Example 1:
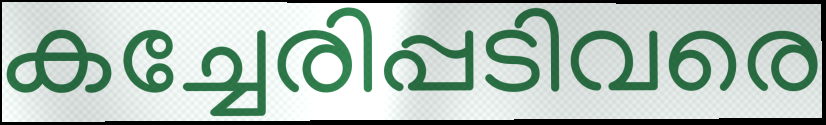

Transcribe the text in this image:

കച്ചേരിപ്പടിവരെ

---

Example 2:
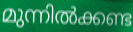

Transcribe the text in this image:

മുന്നിൽക്കണ്ട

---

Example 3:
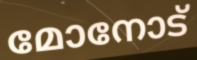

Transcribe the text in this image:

മോനോട്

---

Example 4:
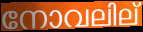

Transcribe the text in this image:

നോവലില്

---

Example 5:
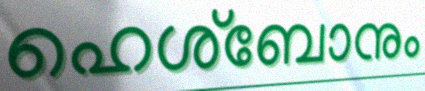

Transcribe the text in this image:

ഹെശ്ബോനും